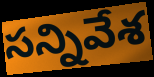
సన్నివేశ